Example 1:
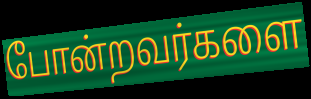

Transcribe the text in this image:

போன்றவர்களை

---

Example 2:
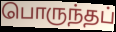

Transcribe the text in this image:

பொருந்தப்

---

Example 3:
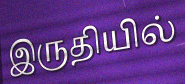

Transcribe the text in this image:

இருதியில்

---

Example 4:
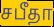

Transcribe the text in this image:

சபீதா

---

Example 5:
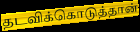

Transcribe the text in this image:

தடவிக்கொடுத்தான்